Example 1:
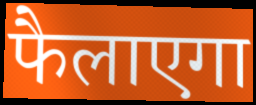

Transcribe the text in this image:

फैलाएगा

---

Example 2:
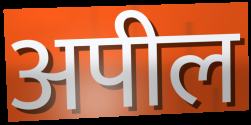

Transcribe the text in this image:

अपील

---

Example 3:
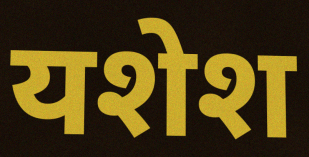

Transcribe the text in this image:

यशेश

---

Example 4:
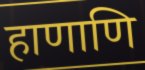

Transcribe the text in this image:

हाणाणि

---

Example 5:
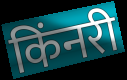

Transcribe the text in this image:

किंनरी